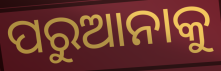
ପରୁଆନାକୁ